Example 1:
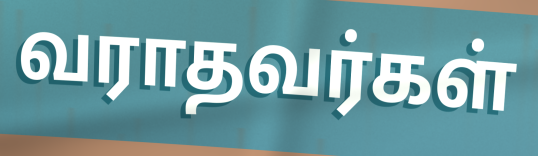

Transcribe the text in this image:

வராதவர்கள்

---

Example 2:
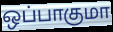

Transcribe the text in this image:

ஒப்பாகுமா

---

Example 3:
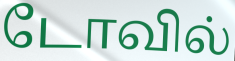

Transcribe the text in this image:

டோவில்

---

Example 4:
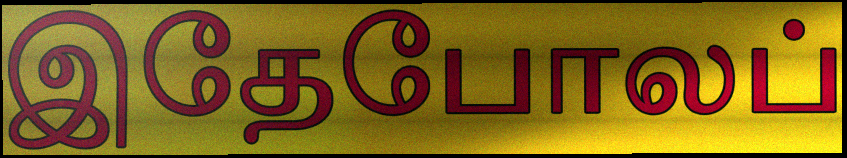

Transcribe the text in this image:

இதேபோலப்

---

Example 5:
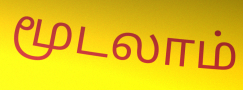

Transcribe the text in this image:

மூடலாம்